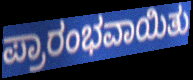
ಪ್ರಾರಂಭವಾಯಿತು